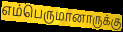
எம்பெருமானாருக்கு